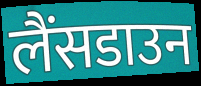
लैंसडाउन